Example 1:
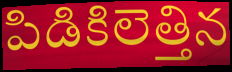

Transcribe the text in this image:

పిడికిలెత్తిన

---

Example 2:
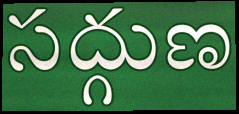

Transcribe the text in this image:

సద్గుణ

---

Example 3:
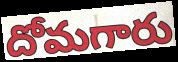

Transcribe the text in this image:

దోమగారు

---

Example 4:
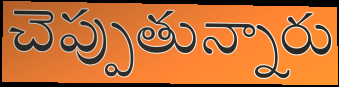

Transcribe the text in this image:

చెప్పుతున్నారు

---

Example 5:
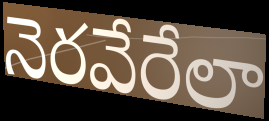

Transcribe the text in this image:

నెరవేరేలా